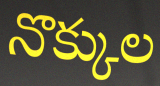
నొక్కుల